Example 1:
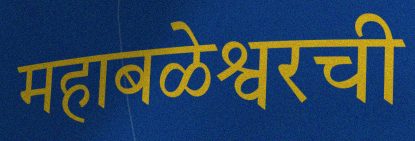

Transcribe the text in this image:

महाबळेश्वरची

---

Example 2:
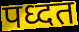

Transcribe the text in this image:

पध्दत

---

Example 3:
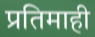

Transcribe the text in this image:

प्रतिमाही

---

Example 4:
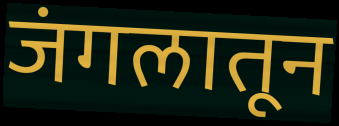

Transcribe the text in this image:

जंगलातून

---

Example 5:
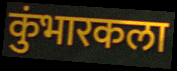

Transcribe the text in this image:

कुंभारकला